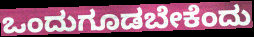
ಒಂದುಗೂಡಬೇಕೆಂದು